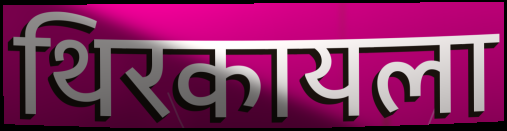
थिरकायला